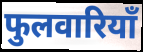
फुलवारियाँ